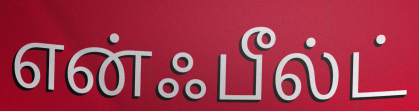
என்ஃபீல்ட்